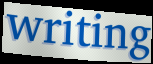
writing